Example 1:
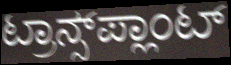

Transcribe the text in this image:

ಟ್ರಾನ್ಸ್‌ಪ್ಲಾಂಟ್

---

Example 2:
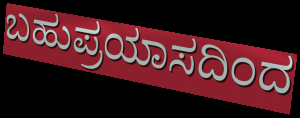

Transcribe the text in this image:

ಬಹುಪ್ರಯಾಸದಿಂದ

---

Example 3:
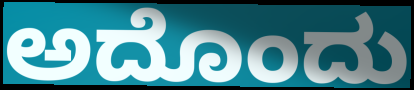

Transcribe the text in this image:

ಅದೊಂದು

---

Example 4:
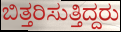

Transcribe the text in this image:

ಬಿತ್ತರಿಸುತ್ತಿದ್ದರು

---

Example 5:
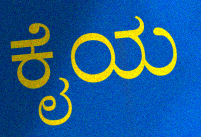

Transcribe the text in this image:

ಕೈಯ